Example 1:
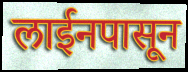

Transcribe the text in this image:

लाईनपासून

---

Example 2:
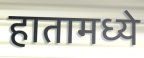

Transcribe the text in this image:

हातामध्ये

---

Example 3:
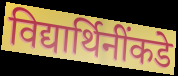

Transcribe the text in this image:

विद्यार्थिनींकडे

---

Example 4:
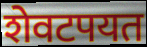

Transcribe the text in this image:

शेवटपयत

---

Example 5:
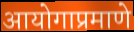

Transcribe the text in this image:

आयोगाप्रमाणे